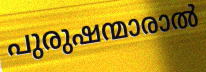
പുരുഷന്മാരാൽ